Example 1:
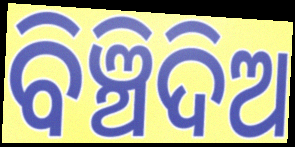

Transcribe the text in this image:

ବିଞ୍ଚିଦିଅ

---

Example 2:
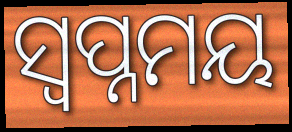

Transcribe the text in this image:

ସ୍ଵପ୍ନମୟ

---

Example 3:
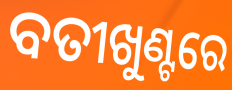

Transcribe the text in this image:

ବତୀଖୁଣ୍ଟରେ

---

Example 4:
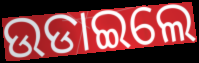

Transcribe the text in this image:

ଉଡାଇଲେ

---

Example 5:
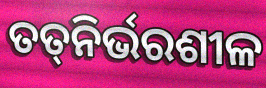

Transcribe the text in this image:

ତତ୍‍ନିର୍ଭରଶୀଳ